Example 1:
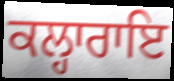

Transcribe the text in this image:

ਕਲ੍ਹਾਰਾਇ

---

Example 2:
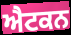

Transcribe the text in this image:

ਐਟਕਨ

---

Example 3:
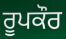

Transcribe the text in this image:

ਰੂਪਕੌਰ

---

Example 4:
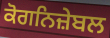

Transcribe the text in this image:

ਕੋਗਨਿਜ਼ੇਬਲ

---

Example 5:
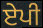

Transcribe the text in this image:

ਏਪੀ